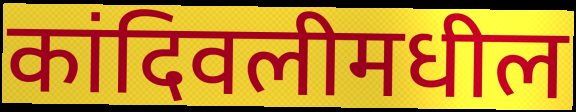
कांदिवलीमधील